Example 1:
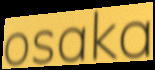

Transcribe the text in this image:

osaka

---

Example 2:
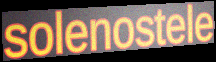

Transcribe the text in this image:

solenostele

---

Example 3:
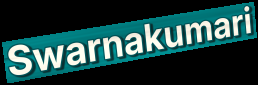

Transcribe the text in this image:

Swarnakumari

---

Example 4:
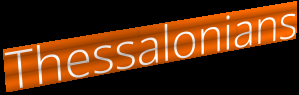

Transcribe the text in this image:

Thessalonians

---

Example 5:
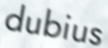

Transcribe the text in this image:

dubius